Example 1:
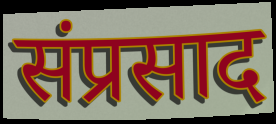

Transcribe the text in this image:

संप्रसाद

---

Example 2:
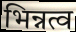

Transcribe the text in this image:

भिन्नत्व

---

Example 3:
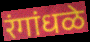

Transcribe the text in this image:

रंगांधळे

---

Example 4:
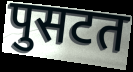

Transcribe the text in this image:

पुसटत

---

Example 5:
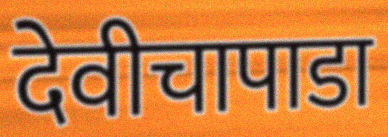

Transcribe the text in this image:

देवीचापाडा